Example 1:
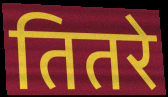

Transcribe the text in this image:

तितरे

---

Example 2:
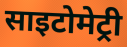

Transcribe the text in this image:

साइटोमेट्री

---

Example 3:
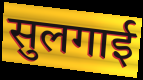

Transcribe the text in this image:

सुलगाई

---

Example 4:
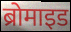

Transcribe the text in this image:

ब्रोमाइड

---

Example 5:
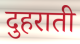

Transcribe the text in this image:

दुहराती